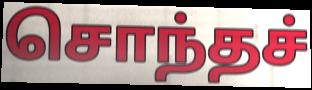
சொந்தச்